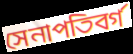
সেনাপতিবর্গ